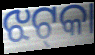
ଝଟ୍‍କା